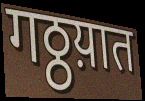
गठ्ठय़ात